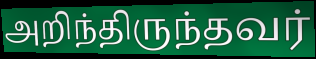
அறிந்திருந்தவர்